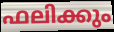
ഫലിക്കും